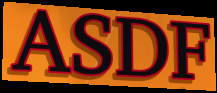
ASDF